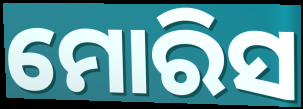
ମୋରିସ